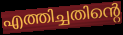
എത്തിച്ചതിന്റെ